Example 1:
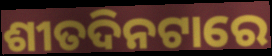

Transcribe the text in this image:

ଶୀତଦିନଟାରେ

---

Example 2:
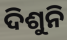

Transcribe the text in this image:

ଦିଶୁନି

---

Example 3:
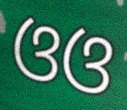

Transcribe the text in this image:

ଓଓ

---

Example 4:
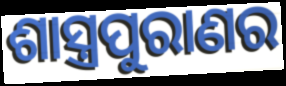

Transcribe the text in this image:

ଶାସ୍ତ୍ରପୁରାଣର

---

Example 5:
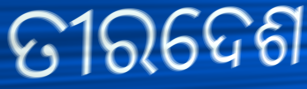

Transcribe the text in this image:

ତୀରଦେଶ